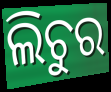
ଲିଚୁର